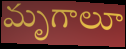
మృగాలూ